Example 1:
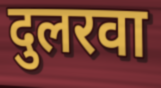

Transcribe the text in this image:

दुलरवा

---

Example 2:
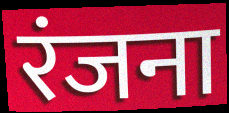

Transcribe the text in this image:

रंजना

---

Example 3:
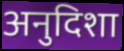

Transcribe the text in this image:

अनुदिशा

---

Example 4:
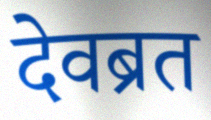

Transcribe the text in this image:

देवब्रत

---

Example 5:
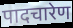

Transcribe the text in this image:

पादचारेण